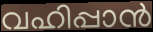
വഹിപ്പാൻ